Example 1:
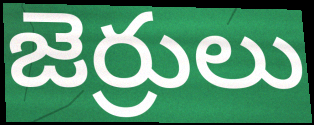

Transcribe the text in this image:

జెర్రులు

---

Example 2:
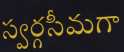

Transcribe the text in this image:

స్వర్గసీమగా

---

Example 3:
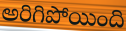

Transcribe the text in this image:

అరిగిపోయింది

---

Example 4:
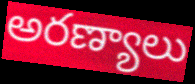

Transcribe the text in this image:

అరణ్యాలు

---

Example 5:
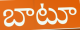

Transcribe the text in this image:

బాటూ